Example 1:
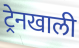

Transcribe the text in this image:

ट्रेनखाली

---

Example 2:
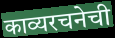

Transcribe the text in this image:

काव्यरचनेची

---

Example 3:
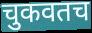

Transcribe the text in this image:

चुकवतच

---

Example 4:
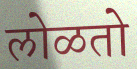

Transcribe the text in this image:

लोळतो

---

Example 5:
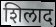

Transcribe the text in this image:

शिलाद